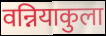
वन्नियाकुला